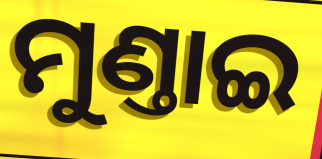
ମୁଣ୍ତାଇ